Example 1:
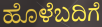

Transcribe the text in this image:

ಹೊಳೆಬದಿಗೆ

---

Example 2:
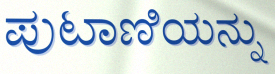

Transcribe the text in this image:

ಪುಟಾಣಿಯನ್ನು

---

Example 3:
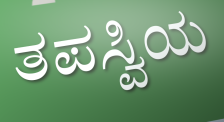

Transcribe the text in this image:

ತಪಸ್ವಿಯ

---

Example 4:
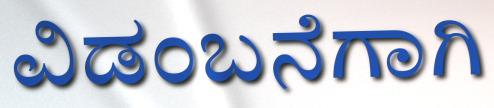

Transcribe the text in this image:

ವಿಡಂಬನೆಗಾಗಿ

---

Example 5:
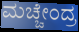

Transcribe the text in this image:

ಮಚ್ಚೇಂದ್ರ